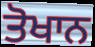
ਤੋਖਾਨ